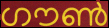
ഗൗൺ